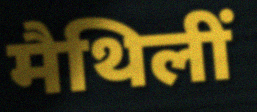
मैथिलीं